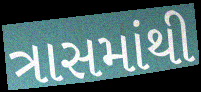
ત્રાસમાંથી